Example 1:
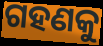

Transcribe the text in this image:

ଗହଣକୁ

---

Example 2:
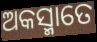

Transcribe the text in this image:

ଅକସ୍ମାତେ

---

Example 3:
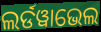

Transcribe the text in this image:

ଲର୍ଡୱାଭେଲ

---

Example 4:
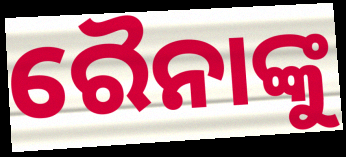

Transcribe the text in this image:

ରୈନାଙ୍କୁ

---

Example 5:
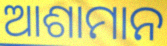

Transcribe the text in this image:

ଆଶାମାନ